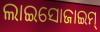
ଲାଇସୋଜାଇମ୍